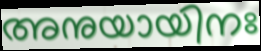
അനുയായിനഃ